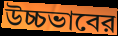
উচ্চভাবের